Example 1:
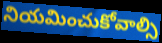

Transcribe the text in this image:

నియమించుకోవాల్సి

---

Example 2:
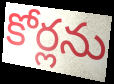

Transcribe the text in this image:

కోర్లను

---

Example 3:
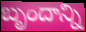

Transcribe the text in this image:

బృందాన్ని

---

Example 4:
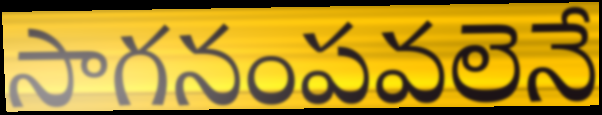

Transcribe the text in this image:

సాగనంపవలెనే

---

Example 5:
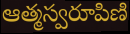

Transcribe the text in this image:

ఆత్మస్వరూపిణి